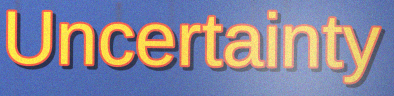
Uncertainty